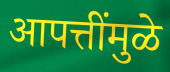
आपत्तींमुळे